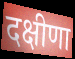
दक्षीणा